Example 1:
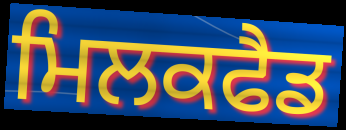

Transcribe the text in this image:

ਮਿਲਕਫੈਡ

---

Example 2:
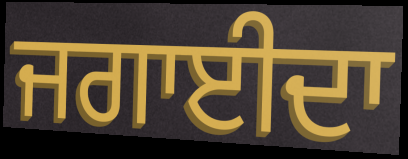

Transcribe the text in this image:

ਜਗਾਈਦਾ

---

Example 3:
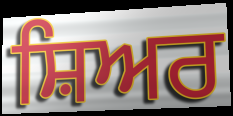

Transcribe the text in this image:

ਸ਼ਿਅਰ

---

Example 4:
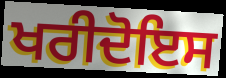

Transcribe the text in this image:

ਖਰੀਦੋਇਸ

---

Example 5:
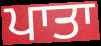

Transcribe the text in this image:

ਪਾਤਾ